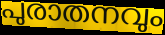
പുരാതനവും